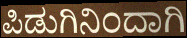
ಪಿಡುಗಿನಿಂದಾಗಿ